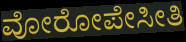
ವೋರೋಪೇಸೀತಿ